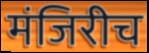
मंजिरीच